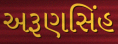
અરૂણસિંહ